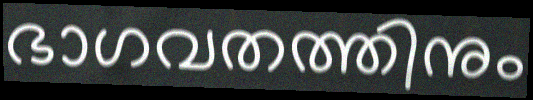
ഭാഗവതത്തിനും